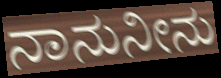
ನಾನುನೀನು